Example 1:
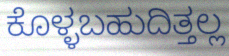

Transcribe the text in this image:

ಕೊಳ್ಳಬಹುದಿತ್ತಲ್ಲ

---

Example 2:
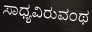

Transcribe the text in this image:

ಸಾಧ್ಯವಿರುವಂಥ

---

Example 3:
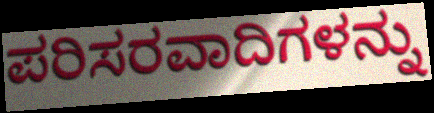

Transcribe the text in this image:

ಪರಿಸರವಾದಿಗಳನ್ನು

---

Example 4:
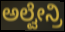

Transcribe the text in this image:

ಅಲ್ವೇನ್ರಿ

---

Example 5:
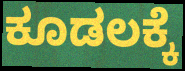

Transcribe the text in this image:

ಕೂಡಲಕ್ಕೆ